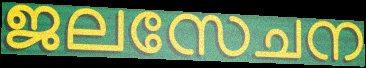
ജലസേചന